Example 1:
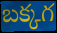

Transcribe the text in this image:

బక్కగ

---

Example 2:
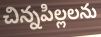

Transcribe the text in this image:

చిన్నపిల్లలను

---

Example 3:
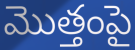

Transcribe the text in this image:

మొత్తంపై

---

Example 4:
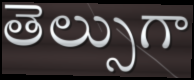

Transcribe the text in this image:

తెల్సుగా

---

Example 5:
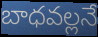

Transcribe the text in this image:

బాధవల్లనే